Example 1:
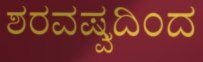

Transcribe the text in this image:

ಶರವಷ್ವದಿಂದ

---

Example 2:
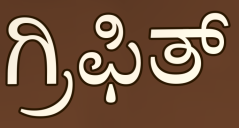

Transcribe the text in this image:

ಗ್ರಿಫಿತ್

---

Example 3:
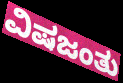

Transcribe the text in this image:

ವಿಷಜಂತು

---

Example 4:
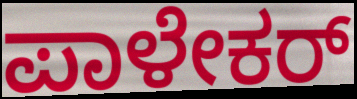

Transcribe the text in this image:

ಪಾಳೇಕರ್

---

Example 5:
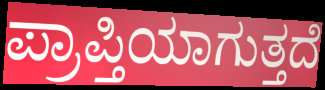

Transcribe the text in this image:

ಪ್ರಾಪ್ತಿಯಾಗುತ್ತದೆ